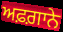
ਅਫ਼ਗ਼ਾਨੇ